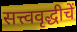
सत्त्ववृद्धीचें